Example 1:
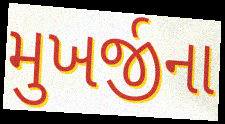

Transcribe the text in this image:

મુખર્જીના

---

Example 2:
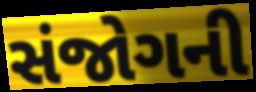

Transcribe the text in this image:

સંજોગની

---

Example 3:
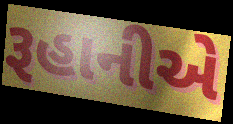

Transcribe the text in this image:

રૂહાનીએ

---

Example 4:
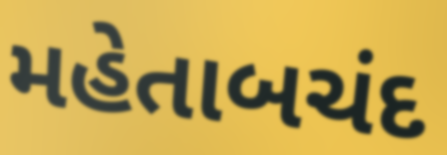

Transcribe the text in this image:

મહેતાબચંદ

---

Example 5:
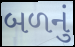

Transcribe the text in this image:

બળનું